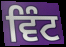
ਵਿੰਟ